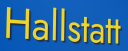
Hallstatt